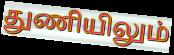
துணியிலும்